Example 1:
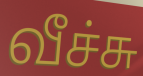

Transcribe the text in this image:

வீச்சு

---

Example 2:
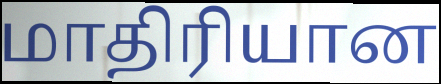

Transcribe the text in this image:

மாதிரியான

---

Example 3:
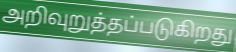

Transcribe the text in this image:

அறிவுறுத்தப்படுகிறது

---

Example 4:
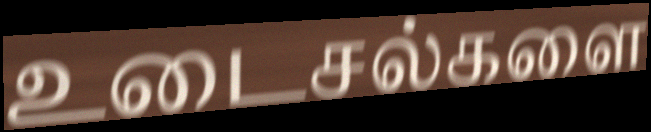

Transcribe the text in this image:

உடைசல்களை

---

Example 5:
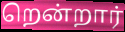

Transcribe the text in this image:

றென்றார்